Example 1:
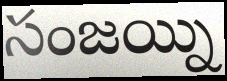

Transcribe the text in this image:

సంజయ్ని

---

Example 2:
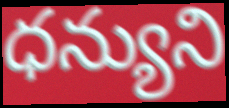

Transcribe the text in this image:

ధన్యుని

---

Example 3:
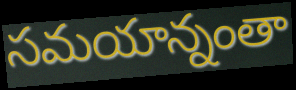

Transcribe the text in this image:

సమయాన్నంతా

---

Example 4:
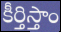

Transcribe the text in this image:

కీర్తిస్తాం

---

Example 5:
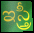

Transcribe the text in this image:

ఇస్త్రీ